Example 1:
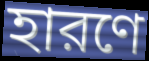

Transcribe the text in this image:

হারণে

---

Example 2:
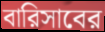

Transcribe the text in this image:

বারিসাবের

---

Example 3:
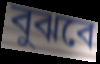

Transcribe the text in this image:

বুঝবে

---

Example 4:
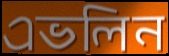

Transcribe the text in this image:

এভলিন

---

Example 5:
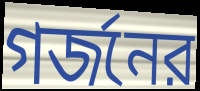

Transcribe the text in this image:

গর্জনের